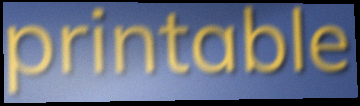
printable